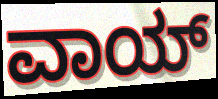
ವಾಯ್